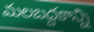
మలబద్దకాన్ని